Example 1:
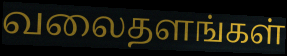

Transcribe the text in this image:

வலைதளங்கள்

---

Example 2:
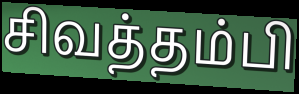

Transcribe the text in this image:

சிவத்தம்பி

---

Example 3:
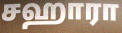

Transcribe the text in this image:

சஹாரா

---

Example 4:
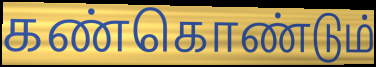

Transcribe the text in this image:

கண்கொண்டும்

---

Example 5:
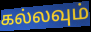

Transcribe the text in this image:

கல்லவும்